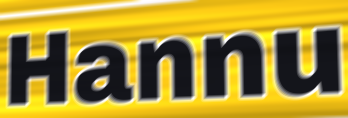
Hannu